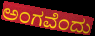
ಅಂಗವೆಂದು